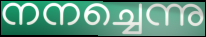
നനച്ചെന്നു